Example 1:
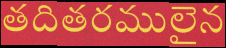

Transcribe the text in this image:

తదితరములైన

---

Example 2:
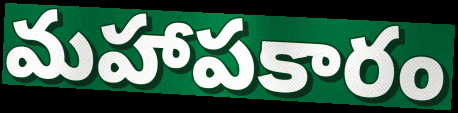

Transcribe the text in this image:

మహాపకారం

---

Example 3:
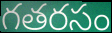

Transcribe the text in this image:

గతరసం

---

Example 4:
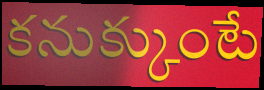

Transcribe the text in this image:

కనుక్కుంటే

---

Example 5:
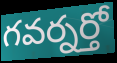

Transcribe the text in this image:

గవర్నర్తో